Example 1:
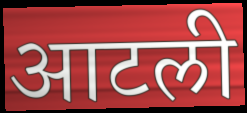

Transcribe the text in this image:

आटली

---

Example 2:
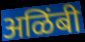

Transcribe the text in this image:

अळिंबी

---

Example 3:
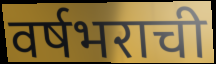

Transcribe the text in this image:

वर्षभराची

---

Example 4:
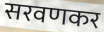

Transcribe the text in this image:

सरवणकर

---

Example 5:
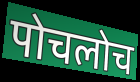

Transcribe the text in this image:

पोचलोच